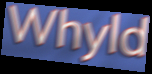
Whyld